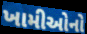
ખામીઓનો